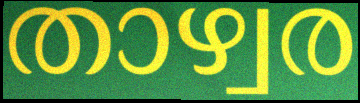
താഴ്വര